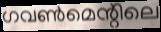
ഗവൺമെന്റിലെ